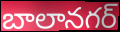
బాలానగర్